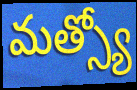
మత్స్యో